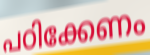
പഠിക്കേണം